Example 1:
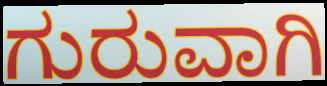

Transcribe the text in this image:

ಗುರುವಾಗಿ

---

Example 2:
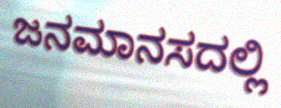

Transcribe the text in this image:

ಜನಮಾನಸದಲ್ಲಿ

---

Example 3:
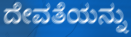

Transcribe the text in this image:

ದೇವತೆಯನ್ನು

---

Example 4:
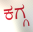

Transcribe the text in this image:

ಕಗ್ಗ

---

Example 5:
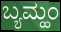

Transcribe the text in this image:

ಬ್ಯಮ್ಹಂ